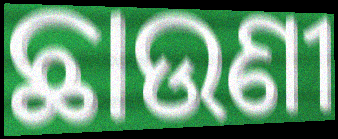
ଛାଉଣୀ